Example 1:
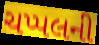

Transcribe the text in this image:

ચપ્પલની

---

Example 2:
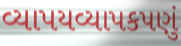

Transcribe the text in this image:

વ્યાપયવ્યાપકપણું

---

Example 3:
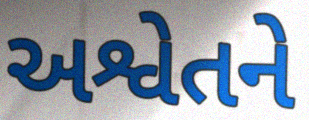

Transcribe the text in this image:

અશ્વેતને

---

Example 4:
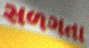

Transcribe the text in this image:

સળગતા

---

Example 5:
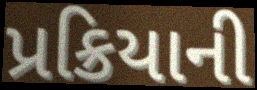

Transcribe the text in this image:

પ્રક્રિયાની